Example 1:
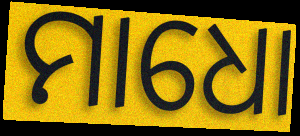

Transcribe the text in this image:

ମାଧୋ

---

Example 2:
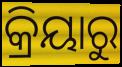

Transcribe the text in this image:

କ୍ରିୟାରୁ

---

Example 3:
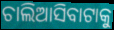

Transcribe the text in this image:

ଚାଲିଆସିବାଟାକୁ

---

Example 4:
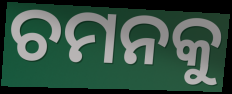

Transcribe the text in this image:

ଚମନକୁ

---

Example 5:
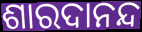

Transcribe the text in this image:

ଶାରଦାନନ୍ଦ